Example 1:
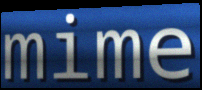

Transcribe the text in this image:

mime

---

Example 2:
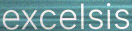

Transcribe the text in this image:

excelsis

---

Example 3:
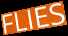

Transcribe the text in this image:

FLIES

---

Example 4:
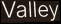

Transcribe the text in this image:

Valley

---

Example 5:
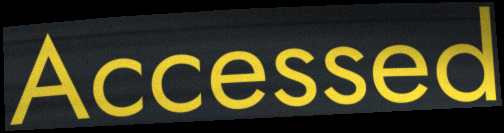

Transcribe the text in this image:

Accessed